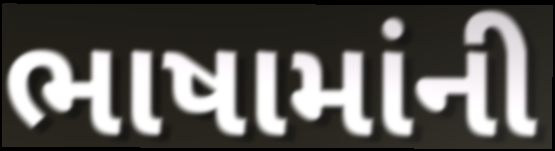
ભાષામાંની